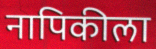
नापिकीला